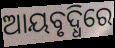
ଆୟବୃଦ୍ଧିରେ